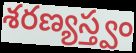
శరణ్యస్త్వం